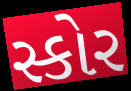
સ્કોર